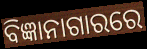
ବିଜ୍ଞାନାଗାରରେ